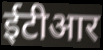
ईटीआर